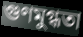
গুণমুগ্ধতা